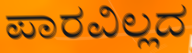
ಪಾರವಿಲ್ಲದ